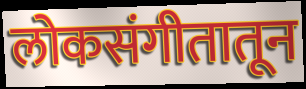
लोकसंगीतातून